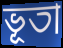
ভূতা